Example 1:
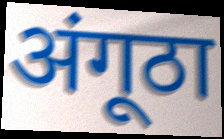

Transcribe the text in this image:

अंगूठा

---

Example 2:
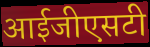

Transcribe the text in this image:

आईजीएसटी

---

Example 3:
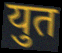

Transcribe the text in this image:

युत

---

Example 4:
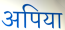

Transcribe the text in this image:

अपिया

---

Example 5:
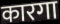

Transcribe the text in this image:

कारगा